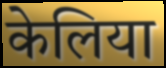
केलिया